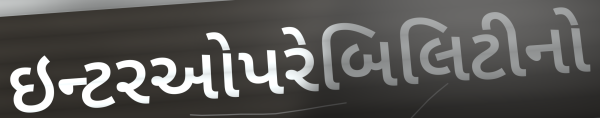
ઇન્ટરઓપરેબિલિટીનો